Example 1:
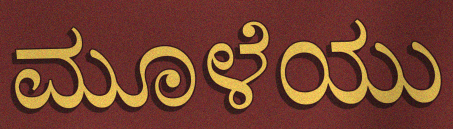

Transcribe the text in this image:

ಮೂಳೆಯು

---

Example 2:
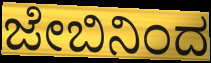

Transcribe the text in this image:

ಜೇಬಿನಿಂದ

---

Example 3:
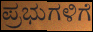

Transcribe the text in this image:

ಪ್ರಭುಗಳಿಗೆ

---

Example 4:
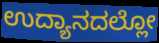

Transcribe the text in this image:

ಉದ್ಯಾನದಲ್ಲೋ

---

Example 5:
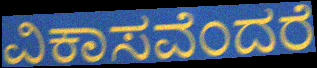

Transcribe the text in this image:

ವಿಕಾಸವೆಂದರೆ